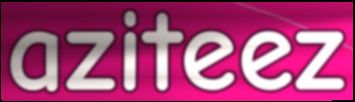
aziteez